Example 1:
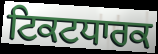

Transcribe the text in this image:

ਟਿਕਟਧਾਰਕ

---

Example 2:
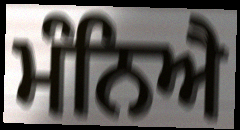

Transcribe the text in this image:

ਮੰਨਿਐ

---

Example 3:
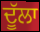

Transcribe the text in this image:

ਦੂੱਲਾ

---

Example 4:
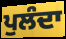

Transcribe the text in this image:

ਪੁਲੰਦਾ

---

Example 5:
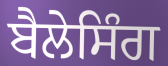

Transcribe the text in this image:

ਬੈਲੇਸਿੰਗ